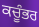
ਕਚੂੰਭਰ